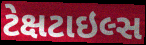
ટેક્ષટાઇલ્સ